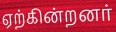
ஏற்கின்றனர்